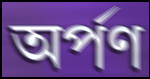
অৰ্পণ